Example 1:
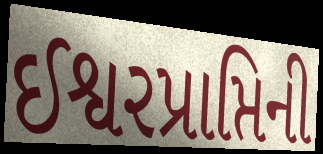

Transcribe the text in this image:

ઈશ્વરપ્રાપ્તિની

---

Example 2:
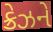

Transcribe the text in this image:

ક્રેઝને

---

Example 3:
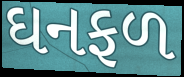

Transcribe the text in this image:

ઘનફળ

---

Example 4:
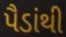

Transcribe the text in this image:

પૈડાંથી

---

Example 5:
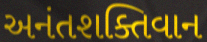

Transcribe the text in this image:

અનંતશક્તિવાન